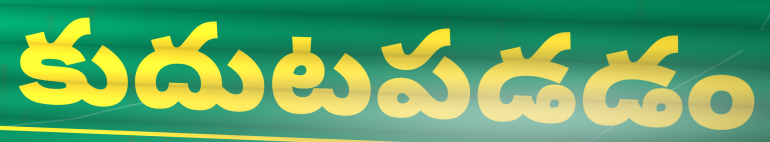
కుదుటపడడం